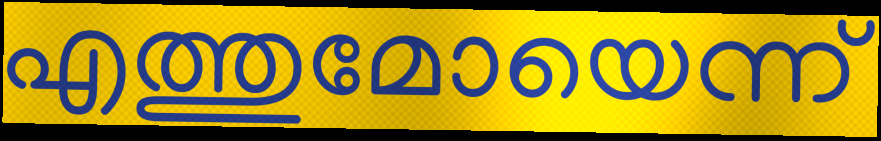
എത്തുമോയെന്ന്